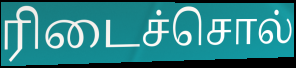
ரிடைச்சொல்